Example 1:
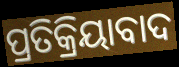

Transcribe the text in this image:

ପ୍ରତିକ୍ରିୟାବାଦ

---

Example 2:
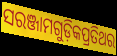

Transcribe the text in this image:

ସରଞ୍ଜାମଗୁଡ଼ିକପ୍ରତିଥର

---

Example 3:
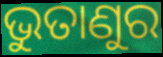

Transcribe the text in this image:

ଭୁତାଣୁର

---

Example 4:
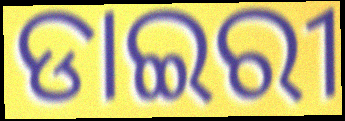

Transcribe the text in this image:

ଡାଇରୀ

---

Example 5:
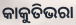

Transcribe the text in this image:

କାକୁତିଭରା